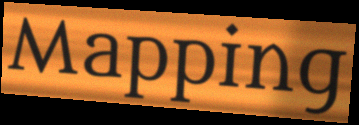
Mapping